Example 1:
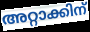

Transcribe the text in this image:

അറ്റാക്കിന്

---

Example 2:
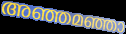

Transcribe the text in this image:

അഞ്ഞമഞ്ഞാ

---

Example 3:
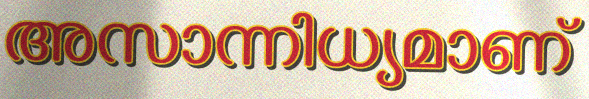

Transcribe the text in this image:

അസാന്നിധ്യമാണ്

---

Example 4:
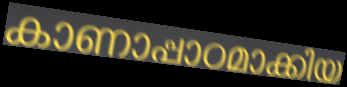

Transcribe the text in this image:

കാണാപ്പാഠമാക്കിയ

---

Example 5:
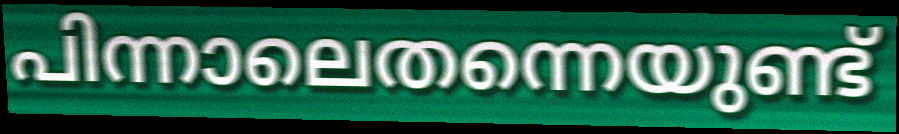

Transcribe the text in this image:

പിന്നാലെതന്നെയുണ്ട്